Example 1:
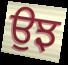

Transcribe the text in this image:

ਉਝ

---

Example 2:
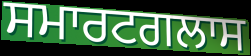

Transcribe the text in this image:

ਸਮਾਰਟਗਲਾਸ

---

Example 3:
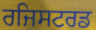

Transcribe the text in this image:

ਰਜਿਸਟਰਡ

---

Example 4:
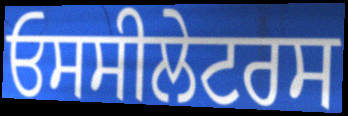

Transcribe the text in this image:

ਓਸਸੀਲੇਟਰਸ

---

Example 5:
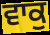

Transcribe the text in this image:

ਵਾਕੁ